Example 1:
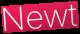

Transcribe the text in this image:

Newt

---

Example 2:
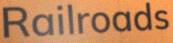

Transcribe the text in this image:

Railroads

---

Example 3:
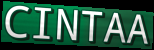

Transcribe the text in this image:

CINTAA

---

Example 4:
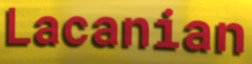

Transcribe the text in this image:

Lacanian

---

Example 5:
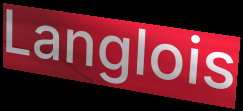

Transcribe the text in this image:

Langlois